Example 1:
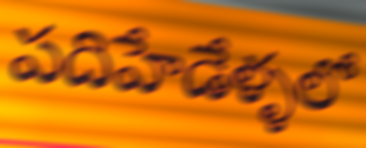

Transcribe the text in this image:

పదిహేడేళ్ళలో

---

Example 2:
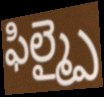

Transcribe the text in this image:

ఫిల్మ్పై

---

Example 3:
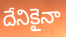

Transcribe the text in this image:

దేనికైనా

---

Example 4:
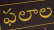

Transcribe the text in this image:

ఫలాల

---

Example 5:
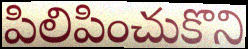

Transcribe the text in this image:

పిలిపించుకొని